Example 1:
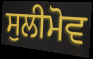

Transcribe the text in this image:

ਸੁਲੀਮੋਵ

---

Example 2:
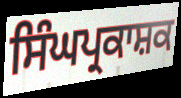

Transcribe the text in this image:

ਸਿੰਘਪ੍ਰਕਾਸ਼ਕ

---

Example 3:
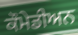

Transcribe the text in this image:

ਕੌਮੇਡੀਅਨ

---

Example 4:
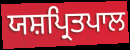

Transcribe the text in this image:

ਯਸ਼ਪ੍ਰਿਤਪਾਲ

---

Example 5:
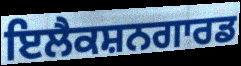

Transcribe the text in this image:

ਇਲੈਕਸ਼ਨਗਾਰਡ